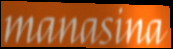
manasina